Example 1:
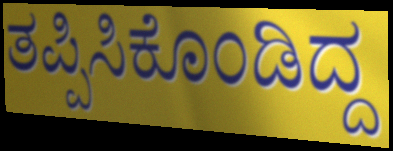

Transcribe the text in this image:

ತಪ್ಪಿಸಿಕೊಂಡಿದ್ದ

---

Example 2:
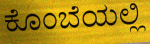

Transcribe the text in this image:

ಕೊಂಬೆಯಲ್ಲಿ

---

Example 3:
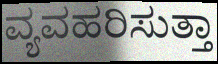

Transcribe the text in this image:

ವ್ಯವಹರಿಸುತ್ತಾ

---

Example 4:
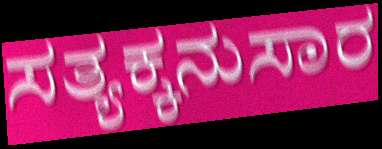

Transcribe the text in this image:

ಸತ್ಯಕ್ಕನುಸಾರ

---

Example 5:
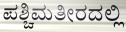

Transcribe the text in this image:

ಪಶ್ಚಿಮತೀರದಲ್ಲಿ